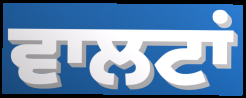
ਵਾਲਟਾਂ